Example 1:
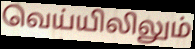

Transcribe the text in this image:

வெய்யிலிலும்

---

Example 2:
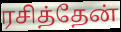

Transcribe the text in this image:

ரசித்தேன்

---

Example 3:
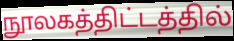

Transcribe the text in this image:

நூலகத்திட்டத்தில்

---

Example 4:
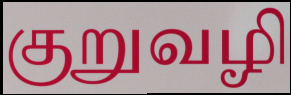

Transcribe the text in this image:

குறுவழி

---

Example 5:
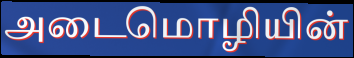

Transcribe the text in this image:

அடைமொழியின்